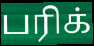
பரிக்